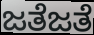
ಜತೆಜತೆ